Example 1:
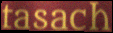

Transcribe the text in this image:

tasach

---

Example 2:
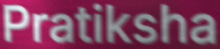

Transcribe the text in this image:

Pratiksha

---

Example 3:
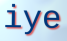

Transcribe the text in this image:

iye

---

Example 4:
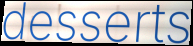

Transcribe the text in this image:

desserts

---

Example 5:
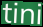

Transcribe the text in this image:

tini